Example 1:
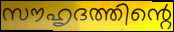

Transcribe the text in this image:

സൗഹൃദത്തിന്റെ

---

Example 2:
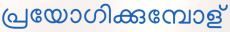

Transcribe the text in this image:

പ്രയോഗിക്കുമ്പോള്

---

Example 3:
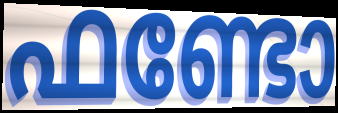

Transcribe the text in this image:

ഫണ്ടോ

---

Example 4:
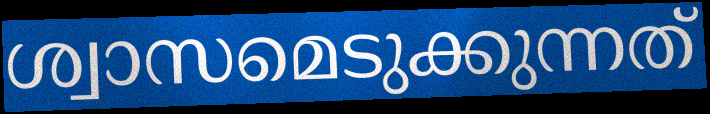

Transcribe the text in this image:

ശ്വാസമെടുക്കുന്നത്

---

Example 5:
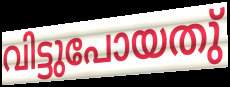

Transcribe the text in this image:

വിട്ടുപോയതു്